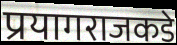
प्रयागराजकडे